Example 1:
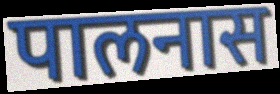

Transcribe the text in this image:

पालनास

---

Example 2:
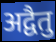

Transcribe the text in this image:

अद्वैतु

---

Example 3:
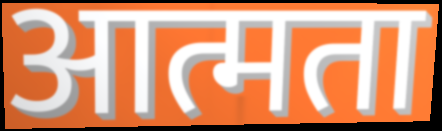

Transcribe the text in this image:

आत्मता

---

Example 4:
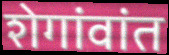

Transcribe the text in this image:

शेगांवांत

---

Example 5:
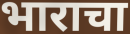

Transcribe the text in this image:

भाराचा